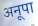
अनूपा